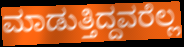
ಮಾಡುತ್ತಿದ್ದವರೆಲ್ಲ